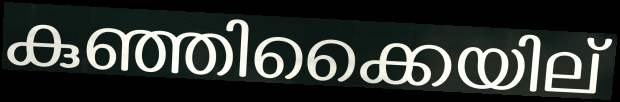
കുഞ്ഞിക്കൈയില്